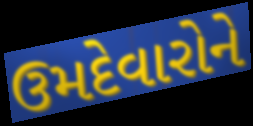
ઉમદેવારોને